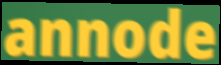
annode